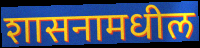
शासनामधील